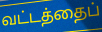
வட்டத்தைப்